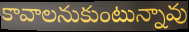
కావాలనుకుంటున్నావు